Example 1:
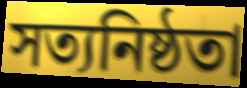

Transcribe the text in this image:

সত্যনিষ্ঠতা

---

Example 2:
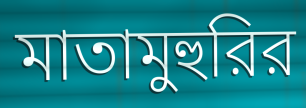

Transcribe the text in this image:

মাতামুহুরির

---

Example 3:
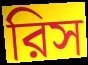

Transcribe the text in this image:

রিস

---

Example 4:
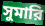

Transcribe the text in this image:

সুমারি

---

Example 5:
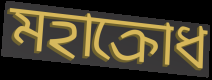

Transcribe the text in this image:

মহাক্রোধ